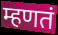
म्हणतं